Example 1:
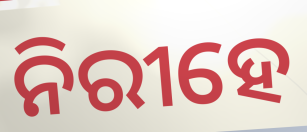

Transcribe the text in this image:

ନିରୀହେ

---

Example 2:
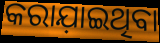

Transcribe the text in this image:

କରାଯ଼ାଇଥିବା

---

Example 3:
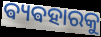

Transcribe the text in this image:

ଵ୍ୟଵହାରକୁ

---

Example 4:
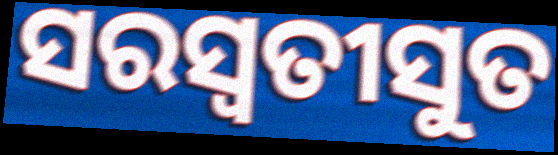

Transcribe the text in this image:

ସରସ୍ୱତୀସୁତ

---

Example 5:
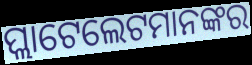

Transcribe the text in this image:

ପ୍ଲାଟେଲେଟମାନଙ୍କର